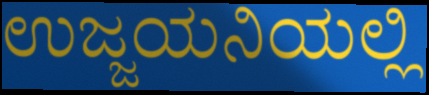
ಉಜ್ಜಯನಿಯಲ್ಲಿ